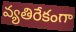
వ్యతిరేకంగా